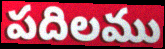
పదిలము